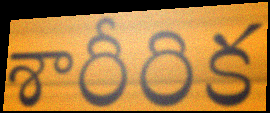
శారీరిక